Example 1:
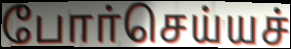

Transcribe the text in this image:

போர்செய்யச்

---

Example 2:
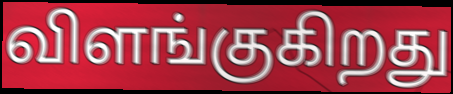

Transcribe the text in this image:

விளங்குகிறது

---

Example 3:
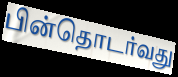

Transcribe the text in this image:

பின்தொடர்வது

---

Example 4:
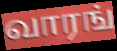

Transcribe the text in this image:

வாரங்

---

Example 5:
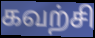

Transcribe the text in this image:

கவற்சி